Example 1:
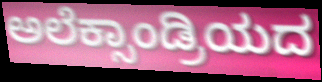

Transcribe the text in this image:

ಅಲೆಕ್ಸಾಂಡ್ರಿಯದ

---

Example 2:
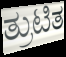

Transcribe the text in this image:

ತ್ರುಟಿತ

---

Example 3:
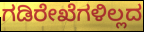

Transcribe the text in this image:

ಗಡಿರೇಖೆಗಳಿಲ್ಲದ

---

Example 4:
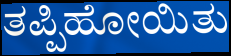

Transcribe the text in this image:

ತಪ್ಪಿಹೋಯಿತು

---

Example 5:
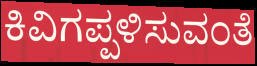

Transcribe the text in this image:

ಕಿವಿಗಪ್ಪಳಿಸುವಂತೆ